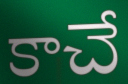
కాచే